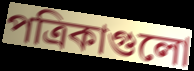
পত্রিকাগুলো